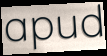
apud